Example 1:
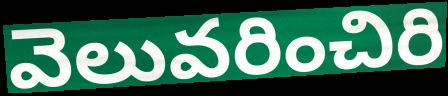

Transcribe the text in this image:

వెలువరించిరి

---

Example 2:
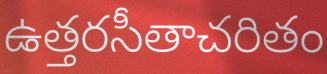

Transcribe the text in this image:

ఉత్తరసీతాచరితం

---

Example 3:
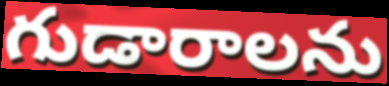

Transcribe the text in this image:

గుడారాలను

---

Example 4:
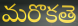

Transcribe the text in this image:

మరొకతె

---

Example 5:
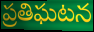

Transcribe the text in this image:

ప్రతిఘటన